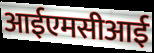
आईएमसीआई